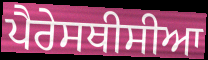
ਪੈਰੇਸਥੀਸੀਆ